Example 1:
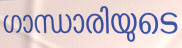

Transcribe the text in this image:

ഗാന്ധാരിയുടെ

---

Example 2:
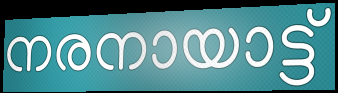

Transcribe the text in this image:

നരനായാട്ട്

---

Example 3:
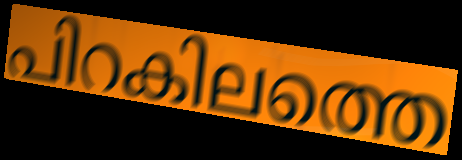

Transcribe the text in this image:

പിറകിലത്തെ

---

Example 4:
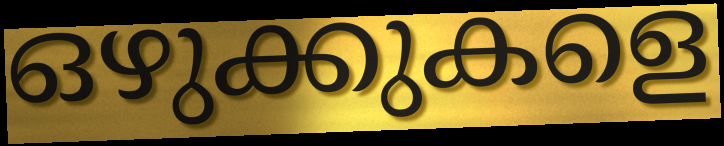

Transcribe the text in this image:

ഒഴുക്കുകളെ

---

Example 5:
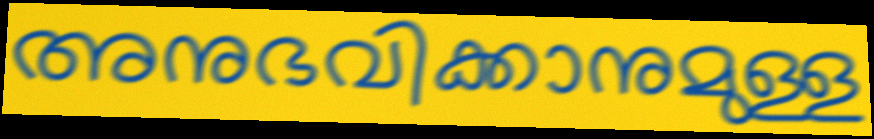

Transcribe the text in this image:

അനുഭവിക്കാനുമുള്ള